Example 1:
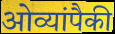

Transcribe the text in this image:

ओव्यांपैकी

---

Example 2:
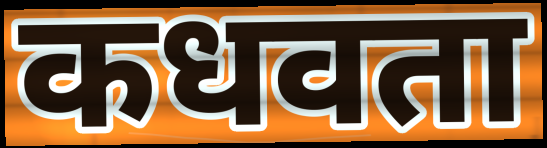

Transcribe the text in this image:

कधवता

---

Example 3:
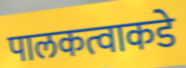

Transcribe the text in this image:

पालकत्वाकडे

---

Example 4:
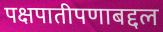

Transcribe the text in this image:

पक्षपातीपणाबद्दल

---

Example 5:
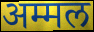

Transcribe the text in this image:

अम्मल